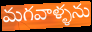
మగవాళ్ళను